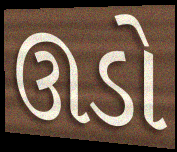
ઊડો